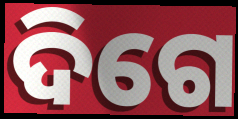
ଦିଗେ